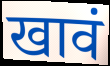
खावं